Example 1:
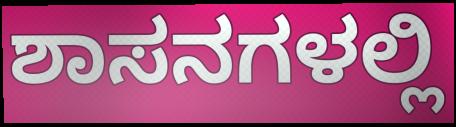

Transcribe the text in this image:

ಶಾಸನಗಳಲ್ಲಿ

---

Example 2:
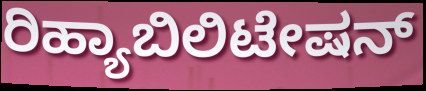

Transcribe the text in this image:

ರಿಹ್ಯಾಬಿಲಿಟೇಷನ್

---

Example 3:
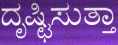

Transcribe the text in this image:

ದೃಷ್ಟಿಸುತ್ತಾ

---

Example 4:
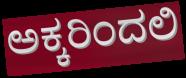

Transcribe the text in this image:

ಅಕ್ಕರಿಂದಲಿ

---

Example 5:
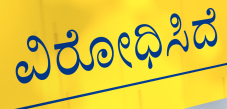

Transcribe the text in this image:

ವಿರೋಧಿಸಿದೆ